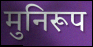
मुनिरूप